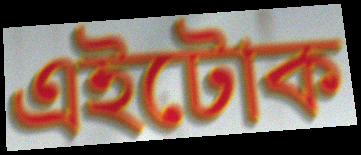
এইটোক